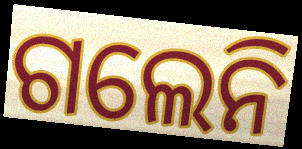
ଗଲେନି